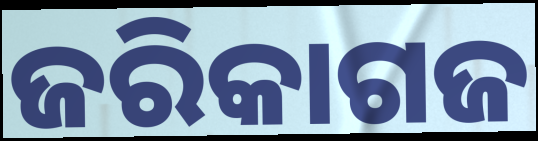
ଜରିକାଗଜ